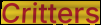
Critters